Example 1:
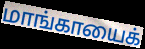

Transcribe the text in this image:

மாங்காயைக்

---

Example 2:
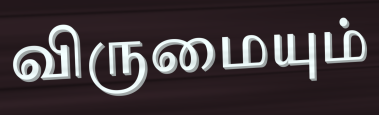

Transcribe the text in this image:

விருமையும்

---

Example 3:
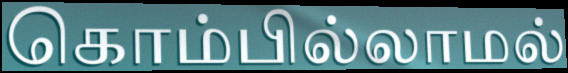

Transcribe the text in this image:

கொம்பில்லாமல்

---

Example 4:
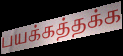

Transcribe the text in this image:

பயக்கத்தக்க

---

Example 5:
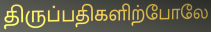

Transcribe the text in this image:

திருப்பதிகளிற்போலே